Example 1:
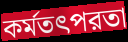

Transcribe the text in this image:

কর্মতৎপরতা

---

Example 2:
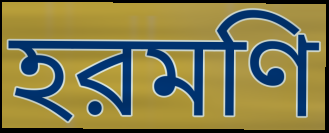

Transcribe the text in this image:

হরমণি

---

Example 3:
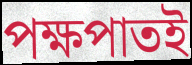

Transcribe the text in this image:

পক্ষপাতই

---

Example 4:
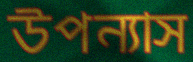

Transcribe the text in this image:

উপন্যাস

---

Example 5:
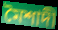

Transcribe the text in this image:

মৈশাদী